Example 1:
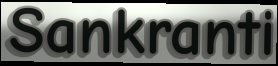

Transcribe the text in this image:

Sankranti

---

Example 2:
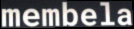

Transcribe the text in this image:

membela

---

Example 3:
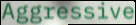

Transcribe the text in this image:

Aggressive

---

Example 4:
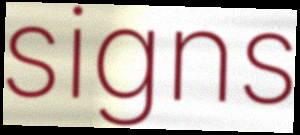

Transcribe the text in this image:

signs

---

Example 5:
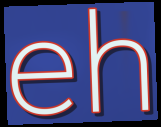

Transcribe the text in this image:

eh